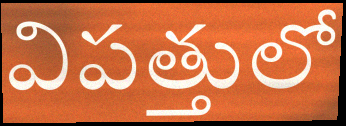
విపత్తులో